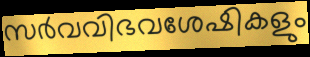
സർവവിഭവശേഷികളും